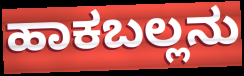
ಹಾಕಬಲ್ಲನು